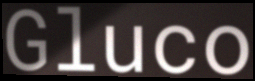
Gluco